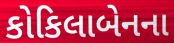
કોકિલાબેનના